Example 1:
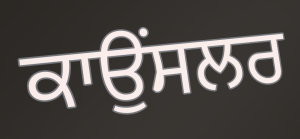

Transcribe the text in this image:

ਕਾਉਂਸਲਰ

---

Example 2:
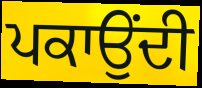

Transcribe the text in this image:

ਪਕਾਉਂਦੀ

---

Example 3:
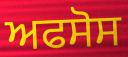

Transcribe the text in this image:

ਅਫਸੋਸ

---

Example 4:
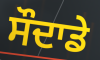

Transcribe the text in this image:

ਸੌਦਾਡੇ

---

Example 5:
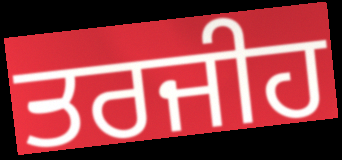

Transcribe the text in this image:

ਤਰਜੀਹ